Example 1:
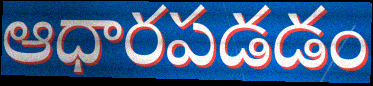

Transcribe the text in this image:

ఆధారపడడం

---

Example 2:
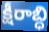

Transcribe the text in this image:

క్షీరాబ్ధి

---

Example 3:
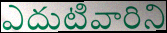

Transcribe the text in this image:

ఎదుటివారిని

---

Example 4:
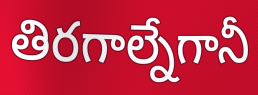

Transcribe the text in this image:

తిరగాల్నేగానీ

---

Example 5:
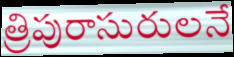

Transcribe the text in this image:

త్రిపురాసురులనే